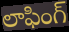
లాఫింగ్